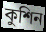
কুশিন